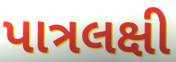
પાત્રલક્ષી